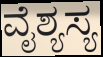
ವೈಶ್ಯಸ್ಯ